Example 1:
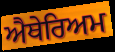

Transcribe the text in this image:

ਐਥੇਰਿਅਮ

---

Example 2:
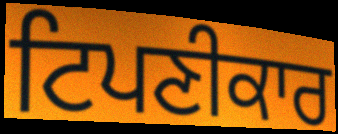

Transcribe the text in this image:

ਟਿਪਣੀਕਾਰ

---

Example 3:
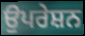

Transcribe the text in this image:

ਉਪਰੇਸ਼ਨ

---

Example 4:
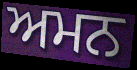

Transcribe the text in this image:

ਅਮਨ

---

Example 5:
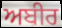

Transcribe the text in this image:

ਅਬੀਰ